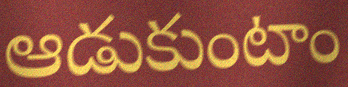
ఆడుకుంటాం